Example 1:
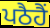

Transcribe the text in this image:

ਪਠੈਹੈਂ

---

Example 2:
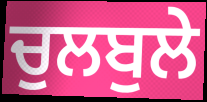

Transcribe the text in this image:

ਚੁਲਬੁਲੇ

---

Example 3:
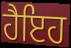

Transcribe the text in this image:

ਹੈਇਹ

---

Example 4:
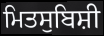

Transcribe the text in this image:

ਮਿਤਸੁਬਿਸ਼ੀ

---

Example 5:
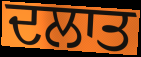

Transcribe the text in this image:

ਦਲਾਤ